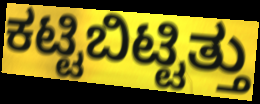
ಕಟ್ಟಿಬಿಟ್ಟಿತ್ತು